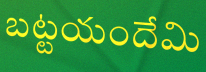
బట్టయందేమి